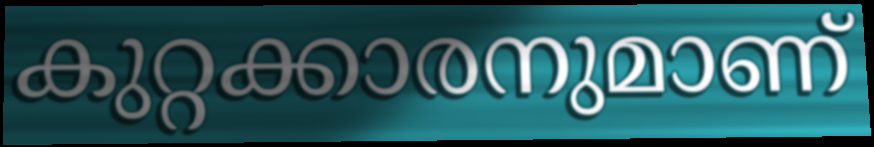
കുറ്റക്കാരനുമാണ്